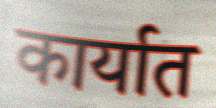
कार्यात